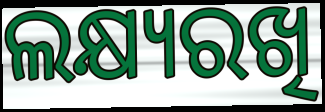
ଲକ୍ଷ୍ୟରଖି